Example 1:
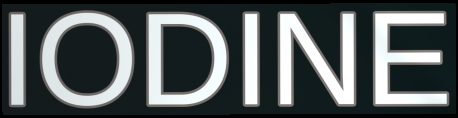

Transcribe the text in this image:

IODINE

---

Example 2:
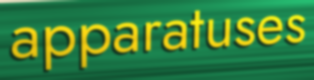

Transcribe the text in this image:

apparatuses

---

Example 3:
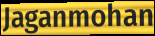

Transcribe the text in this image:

Jaganmohan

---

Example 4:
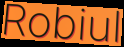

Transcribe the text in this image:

Robiul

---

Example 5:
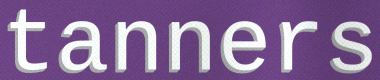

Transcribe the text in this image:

tanners